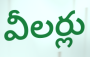
వీలర్లు